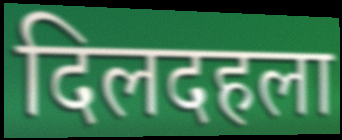
दिलदहला